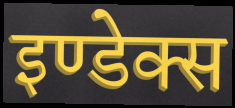
इण्डेक्स